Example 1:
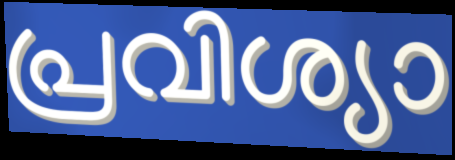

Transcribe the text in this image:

പ്രവിശ്യാ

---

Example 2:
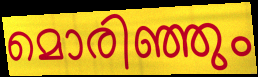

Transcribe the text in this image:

മൊരിഞ്ഞും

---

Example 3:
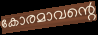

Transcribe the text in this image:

കോരമാവന്റെ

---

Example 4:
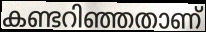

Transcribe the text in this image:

കണ്ടറിഞ്ഞതാണ്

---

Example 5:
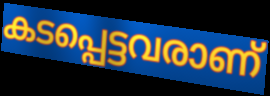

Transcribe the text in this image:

കടപ്പെട്ടവരാണ്